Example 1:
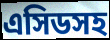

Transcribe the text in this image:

এসিডসহ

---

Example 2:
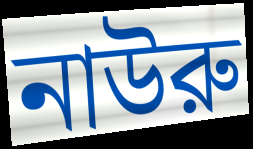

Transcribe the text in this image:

নাউরু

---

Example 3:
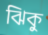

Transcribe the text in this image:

ঝিকু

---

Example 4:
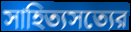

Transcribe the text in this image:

সাহিত্যসত্যের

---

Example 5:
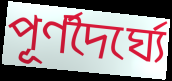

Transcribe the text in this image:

পূর্ণদৈর্ঘ্যে